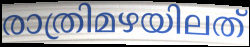
രാത്രിമഴയിലത്